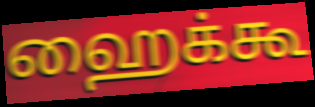
ஹைக்கூ